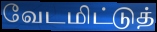
வேடமிட்டுத்